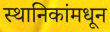
स्थानिकांमधून